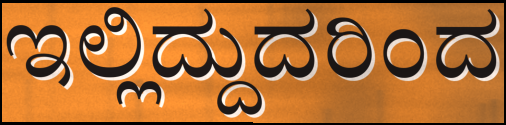
ಇಲ್ಲಿದ್ದುದರಿಂದ